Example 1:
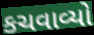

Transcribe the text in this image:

કચવાવ્યો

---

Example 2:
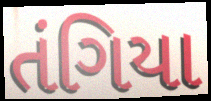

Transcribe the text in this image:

તંગિયા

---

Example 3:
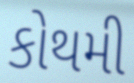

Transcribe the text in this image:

કોથમી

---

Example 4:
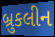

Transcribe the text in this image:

બ્રુકલીન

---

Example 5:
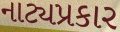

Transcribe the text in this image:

નાટ્યપ્રકાર